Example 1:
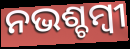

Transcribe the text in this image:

ନଭଶ୍ଚମ୍ବୀ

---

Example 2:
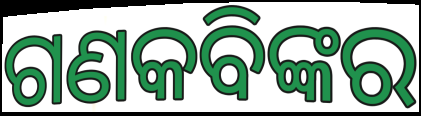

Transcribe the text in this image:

ଗଣକବିଙ୍କର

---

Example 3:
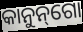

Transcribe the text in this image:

କାନୁନ୍‌ଗୋ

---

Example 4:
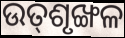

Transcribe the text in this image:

ଉତ୍‌ଶୃଙ୍ଖଳ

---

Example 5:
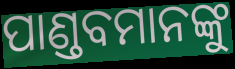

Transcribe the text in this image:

ପାଣ୍ଡବମାନଙ୍କୁ